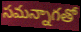
సమన్నాగతో